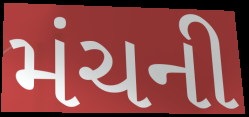
મંચની